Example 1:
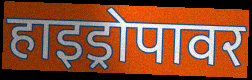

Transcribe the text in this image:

हाइड्रोपावर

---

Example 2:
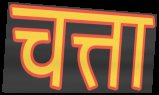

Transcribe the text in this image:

चत्ता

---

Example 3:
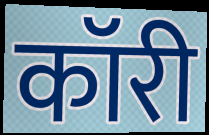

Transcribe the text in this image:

कॉरी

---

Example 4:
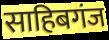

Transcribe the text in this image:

साहिबगंज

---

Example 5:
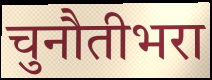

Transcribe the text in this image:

चुनौतीभरा